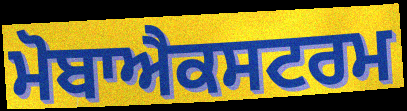
ਮੋਬਾਐਕਸਟਰਮ